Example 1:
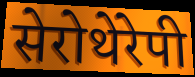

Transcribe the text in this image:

सेरोथेरेपी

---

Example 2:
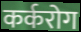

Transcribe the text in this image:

कर्करोग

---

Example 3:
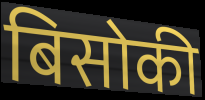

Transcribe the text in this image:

बिसोकी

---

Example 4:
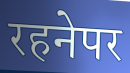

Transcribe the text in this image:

रहनेपर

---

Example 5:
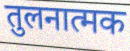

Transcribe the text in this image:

तुलनात्मक